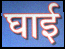
घाई